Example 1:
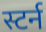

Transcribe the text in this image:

स्टर्न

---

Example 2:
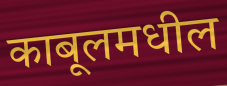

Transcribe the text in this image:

काबूलमधील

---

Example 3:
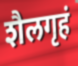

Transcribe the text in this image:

शैलगृहं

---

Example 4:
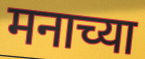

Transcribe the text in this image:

मनाच्‍या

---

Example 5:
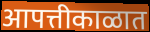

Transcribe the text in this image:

आपत्तीकाळात